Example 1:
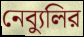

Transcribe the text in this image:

নেব্যুলির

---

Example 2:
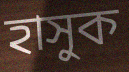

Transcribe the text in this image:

হাসুক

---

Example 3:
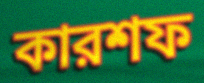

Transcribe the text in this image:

কারশফ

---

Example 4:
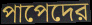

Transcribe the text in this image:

পাপেদের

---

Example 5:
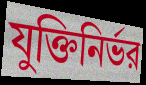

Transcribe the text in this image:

যুক্তিনির্ভর